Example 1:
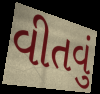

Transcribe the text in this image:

વીતવું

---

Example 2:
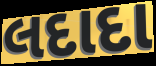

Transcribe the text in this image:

લદાદા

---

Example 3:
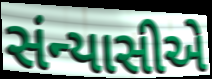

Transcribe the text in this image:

સંન્યાસીએ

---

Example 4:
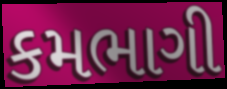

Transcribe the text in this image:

કમભાગી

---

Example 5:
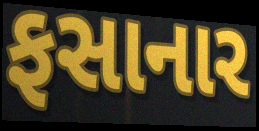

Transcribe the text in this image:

ફસાનાર